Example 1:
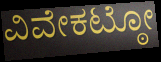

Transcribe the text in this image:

ವಿವೇಕಟ್ಠೋ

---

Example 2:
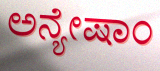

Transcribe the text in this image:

ಅನ್ಯೇಷಾಂ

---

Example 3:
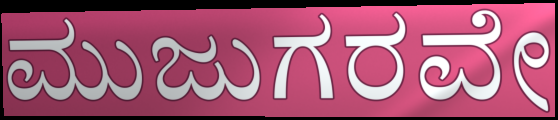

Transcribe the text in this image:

ಮುಜುಗರವೇ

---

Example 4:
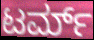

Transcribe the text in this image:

ಟರ್ಮ್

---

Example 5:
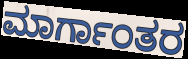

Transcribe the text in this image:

ಮಾರ್ಗಾಂತರ